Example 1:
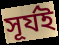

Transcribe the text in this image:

সূৰ্যই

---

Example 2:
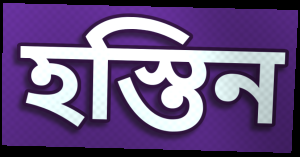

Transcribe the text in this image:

হস্তিন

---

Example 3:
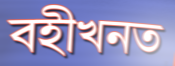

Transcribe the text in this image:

বহীখনত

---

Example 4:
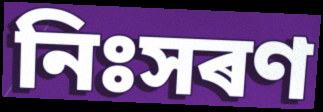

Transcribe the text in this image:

নিঃসৰণ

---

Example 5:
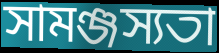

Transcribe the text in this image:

সামঞ্জস্যতা